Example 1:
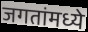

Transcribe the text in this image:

जगतांमध्ये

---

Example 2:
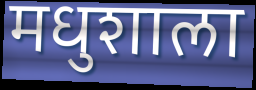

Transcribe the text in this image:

मधुशाला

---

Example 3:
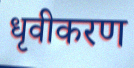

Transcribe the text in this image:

धृवीकरण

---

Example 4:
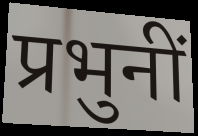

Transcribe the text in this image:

प्रभुनीं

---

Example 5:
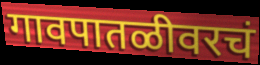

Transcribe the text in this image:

गावपातळीवरचं